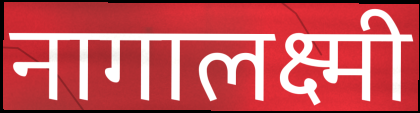
नागालक्ष्मी